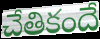
చేతికందే